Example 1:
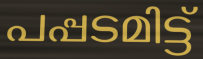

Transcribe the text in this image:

പപ്പടമിട്ട്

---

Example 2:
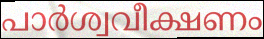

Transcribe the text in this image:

പാർശ്വവീക്ഷണം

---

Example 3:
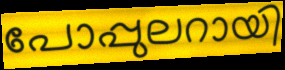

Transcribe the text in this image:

പോപ്പുലറായി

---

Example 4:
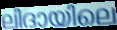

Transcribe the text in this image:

ലിദായിലെ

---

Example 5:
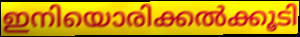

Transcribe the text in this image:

ഇനിയൊരിക്കൽക്കൂടി